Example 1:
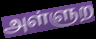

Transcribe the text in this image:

அள்ளுற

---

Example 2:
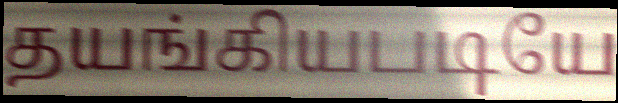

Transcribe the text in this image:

தயங்கியபடியே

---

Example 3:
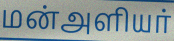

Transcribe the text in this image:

மன்அளியர்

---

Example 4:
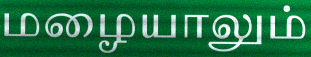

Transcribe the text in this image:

மழையாலும்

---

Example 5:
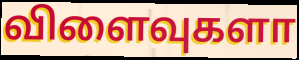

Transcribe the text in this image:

விளைவுகளா